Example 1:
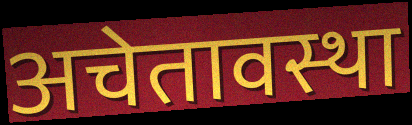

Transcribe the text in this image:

अचेतावस्था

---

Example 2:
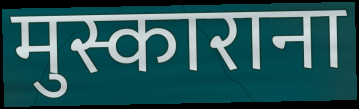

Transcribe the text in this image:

मुस्काराना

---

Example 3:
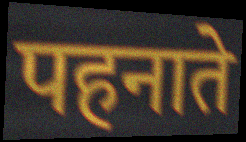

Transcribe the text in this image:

पहनाते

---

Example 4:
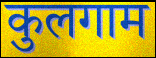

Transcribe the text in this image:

कुलगाम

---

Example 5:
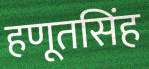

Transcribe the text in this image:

हणूतसिंह